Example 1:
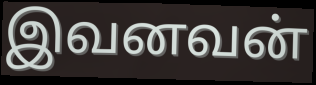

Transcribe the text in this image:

இவனவன்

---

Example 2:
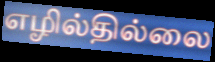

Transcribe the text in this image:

எழில்தில்லை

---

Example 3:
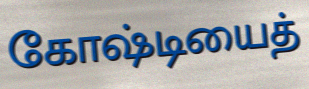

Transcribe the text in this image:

கோஷ்டியைத்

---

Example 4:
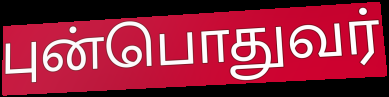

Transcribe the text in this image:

புன்பொதுவர்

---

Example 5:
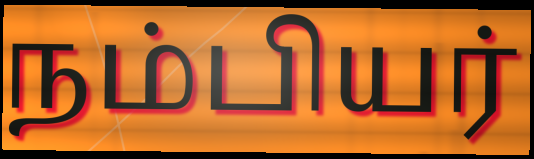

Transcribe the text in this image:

நம்பியர்